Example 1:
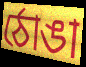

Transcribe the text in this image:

ঠোঙা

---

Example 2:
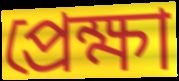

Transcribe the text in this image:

প্ৰেক্ষা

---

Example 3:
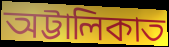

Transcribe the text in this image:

অট্টালিকাত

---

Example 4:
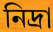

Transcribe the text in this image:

নিদ্ৰা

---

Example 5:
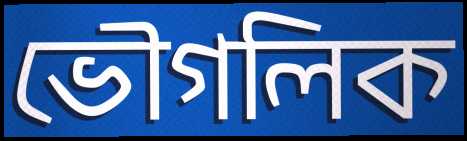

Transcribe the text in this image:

ভৌগলিক